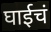
घाईचं